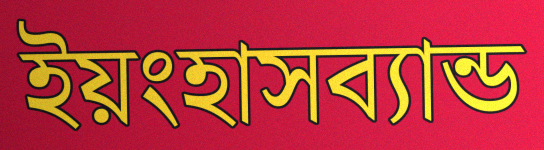
ইয়ংহাসব্যান্ড